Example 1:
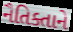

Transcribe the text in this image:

નૈતિક્તાને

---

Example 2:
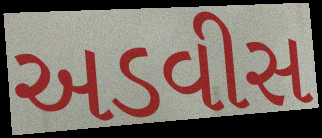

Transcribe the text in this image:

અડવીસ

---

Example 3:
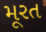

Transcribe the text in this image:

મૂરત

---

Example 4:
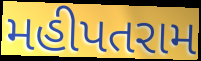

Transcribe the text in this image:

મહીપતરામ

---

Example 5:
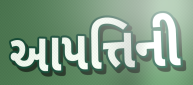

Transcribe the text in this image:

આપત્તિની